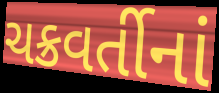
ચક્રવર્તીનાં